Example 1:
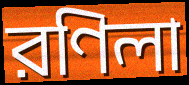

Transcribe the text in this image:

রণিলা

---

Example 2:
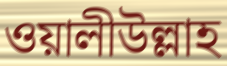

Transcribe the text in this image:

ওয়ালীউল্লাহ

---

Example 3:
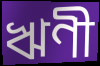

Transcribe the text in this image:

ঋণী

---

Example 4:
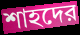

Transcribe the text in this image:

শাহদের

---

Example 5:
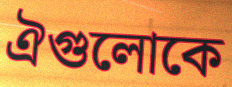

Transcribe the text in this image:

ঐগুলোকে